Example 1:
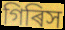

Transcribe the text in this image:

গিৰিস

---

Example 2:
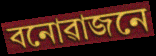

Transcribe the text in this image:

বনোৱাজনে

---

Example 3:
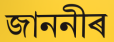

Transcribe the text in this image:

জাননীৰ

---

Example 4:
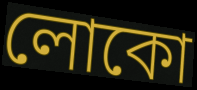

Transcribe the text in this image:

লোকো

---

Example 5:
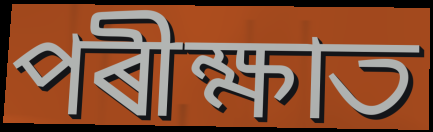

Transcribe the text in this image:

পৰীক্ষাত